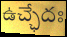
ఉచ్ఛేదః